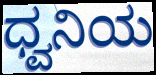
ಧ್ವನಿಯ